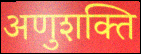
अणुशक्ति